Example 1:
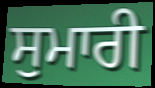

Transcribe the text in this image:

ਸੁਮਾਰੀ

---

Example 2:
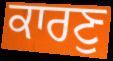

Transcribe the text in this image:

ਕਾਰਣੁ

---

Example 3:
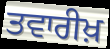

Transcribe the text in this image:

ਤਵਾਰੀਖ਼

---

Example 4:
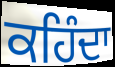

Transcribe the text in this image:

ਕਹਿੰਦਾ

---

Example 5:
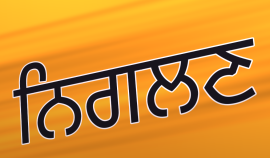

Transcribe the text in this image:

ਨਿਗਲਣ